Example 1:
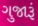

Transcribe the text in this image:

ગુજારૂં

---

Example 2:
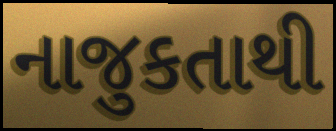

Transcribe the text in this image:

નાજુકતાથી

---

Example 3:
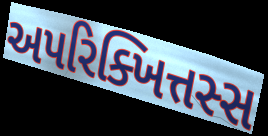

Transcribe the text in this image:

અપરિક્ખિત્તસ્સ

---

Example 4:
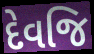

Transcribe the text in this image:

દેવજિ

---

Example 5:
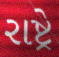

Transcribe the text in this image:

રાષ્ટ્રે